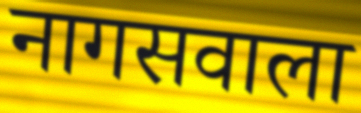
नागसवाला